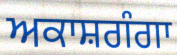
ਅਕਾਸ਼ਗੰਗਾ